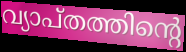
വ്യാപ്തത്തിന്റെ